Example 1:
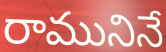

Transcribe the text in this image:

రామునినే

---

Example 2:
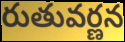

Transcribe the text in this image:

రుతువర్ణన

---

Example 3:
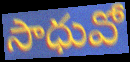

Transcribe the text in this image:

సాధువో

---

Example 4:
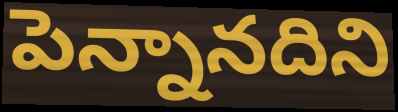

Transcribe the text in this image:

పెన్నానదిని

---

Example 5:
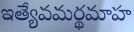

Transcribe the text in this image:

ఇత్యేవమర్థమాహ